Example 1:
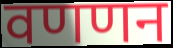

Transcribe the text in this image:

वणणन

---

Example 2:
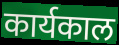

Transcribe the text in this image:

कार्यकाल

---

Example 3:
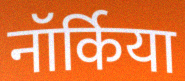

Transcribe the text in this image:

नॉर्किया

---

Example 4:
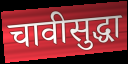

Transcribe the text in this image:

चावीसुद्धा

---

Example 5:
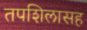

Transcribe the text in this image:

तपशिलासह